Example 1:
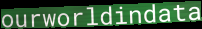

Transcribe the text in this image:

ourworldindata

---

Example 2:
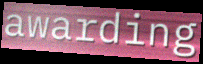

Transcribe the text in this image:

awarding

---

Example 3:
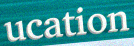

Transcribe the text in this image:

ucation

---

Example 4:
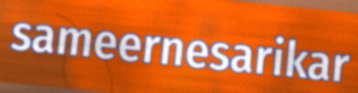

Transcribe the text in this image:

sameernesarikar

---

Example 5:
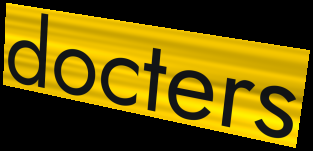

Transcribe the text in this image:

docters